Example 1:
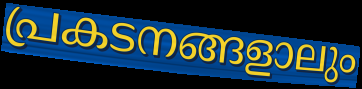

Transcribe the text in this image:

പ്രകടനങ്ങളാലും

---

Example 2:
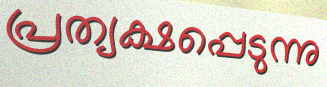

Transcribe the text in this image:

പ്രത്യക്ഷപ്പെടുന്നു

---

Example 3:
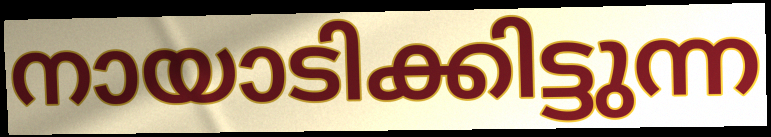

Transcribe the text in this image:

നായാടിക്കിട്ടുന്ന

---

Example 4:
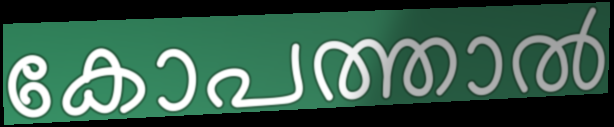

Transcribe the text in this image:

കോപത്താൽ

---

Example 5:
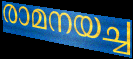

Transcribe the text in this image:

രാമനയച്ച